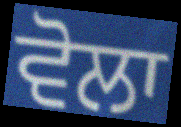
ਵੋਲਾ